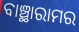
ବାଞ୍ଛାରାମର